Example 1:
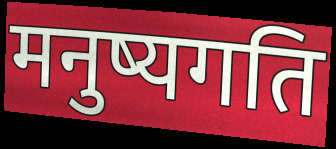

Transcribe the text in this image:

मनुष्यगति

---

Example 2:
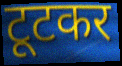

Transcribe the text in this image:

टूटकर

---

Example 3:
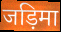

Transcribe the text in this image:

जड़िमा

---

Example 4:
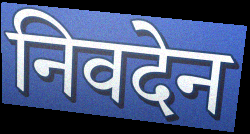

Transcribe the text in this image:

निवदेन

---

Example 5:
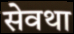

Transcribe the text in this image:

सेवथा